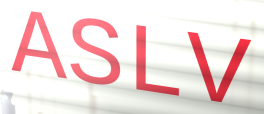
ASLV